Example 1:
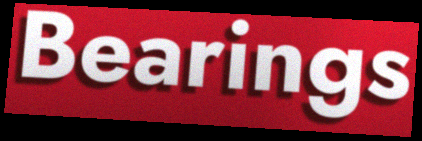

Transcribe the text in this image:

Bearings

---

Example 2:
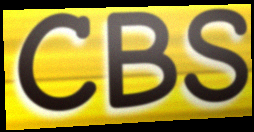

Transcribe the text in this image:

CBS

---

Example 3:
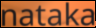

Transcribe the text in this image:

nataka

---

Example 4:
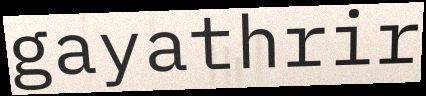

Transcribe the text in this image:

gayathrir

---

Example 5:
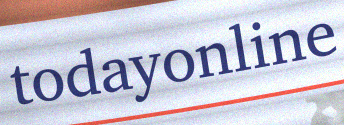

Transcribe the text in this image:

todayonline